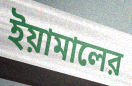
ইয়ামালের